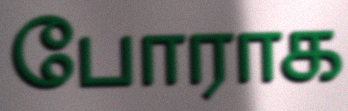
போராக